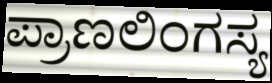
ಪ್ರಾಣಲಿಂಗಸ್ಯ